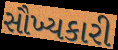
સૌખ્યકારી